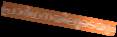
പ്രാർഥനയിലൂടെയും